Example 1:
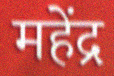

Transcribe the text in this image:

महेंद्र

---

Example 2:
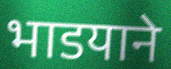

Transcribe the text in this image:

भाडयाने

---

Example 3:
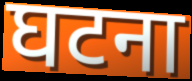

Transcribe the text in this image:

घटना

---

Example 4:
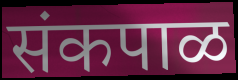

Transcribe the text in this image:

संकपाळ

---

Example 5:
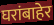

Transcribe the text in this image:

घरांबाहेर